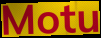
Motu